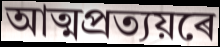
আত্মপ্ৰত্যয়ৰে